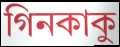
গিনকাকু